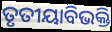
ତୃତୀୟାବିଭକ୍ତି